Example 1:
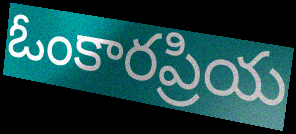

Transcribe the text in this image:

ఓంకారప్రియ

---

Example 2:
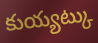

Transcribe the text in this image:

కుయ్యట్కు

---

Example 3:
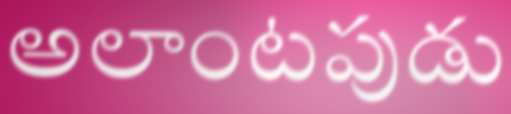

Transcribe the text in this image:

అలాంటపుడు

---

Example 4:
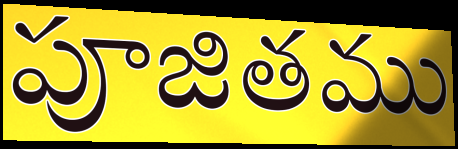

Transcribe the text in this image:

పూజితము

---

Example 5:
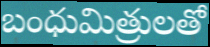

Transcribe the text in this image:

బంధుమిత్రులతో